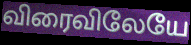
விரைவிலேயே